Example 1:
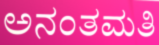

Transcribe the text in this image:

ಅನಂತಮತಿ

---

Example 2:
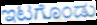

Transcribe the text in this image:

ಇಟಗೊಂಡು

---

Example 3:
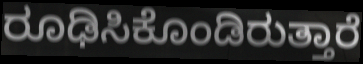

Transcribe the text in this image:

ರೂಢಿಸಿಕೊಂಡಿರುತ್ತಾರೆ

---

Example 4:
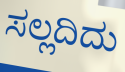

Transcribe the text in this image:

ಸಲ್ಲದಿದು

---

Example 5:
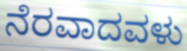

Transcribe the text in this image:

ನೆರವಾದವಳು